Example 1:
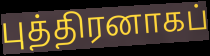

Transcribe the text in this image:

புத்திரனாகப்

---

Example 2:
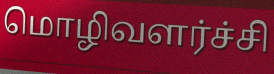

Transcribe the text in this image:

மொழிவளர்ச்சி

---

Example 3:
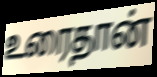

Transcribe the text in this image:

உரைதான்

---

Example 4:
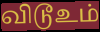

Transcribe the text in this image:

விடூஉம்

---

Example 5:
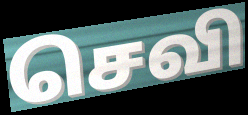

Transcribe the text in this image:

செவி